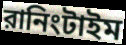
রানিংটাইম